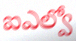
ఐఎల్వో